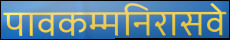
पावकम्मनिरासवे